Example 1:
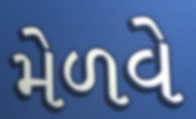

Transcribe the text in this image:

મેળવે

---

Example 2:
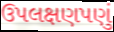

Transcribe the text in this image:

ઉપલક્ષણપણું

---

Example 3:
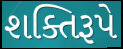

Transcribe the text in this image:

શક્તિરૂપે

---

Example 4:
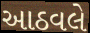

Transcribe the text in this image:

આઠવલે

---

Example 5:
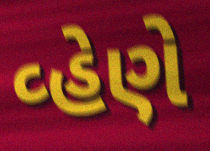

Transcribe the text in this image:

વ્હેણે